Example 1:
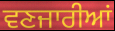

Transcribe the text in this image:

ਵਣਜਾਰੀਆਂ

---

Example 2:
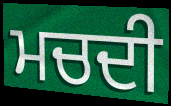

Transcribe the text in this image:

ਮਚਦੀ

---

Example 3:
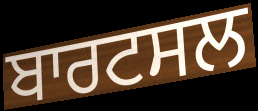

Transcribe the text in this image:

ਬਾਰਟਸਲ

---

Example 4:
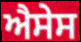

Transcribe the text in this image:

ਐਸੇਸ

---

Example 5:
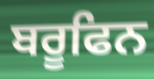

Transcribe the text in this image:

ਬਰੂਫਿਨ